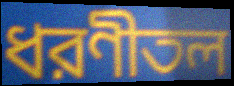
ধরণীতল